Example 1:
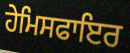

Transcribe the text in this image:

ਹੇਮਿਸਫਾਇਰ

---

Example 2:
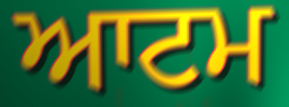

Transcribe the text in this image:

ਆਟਮ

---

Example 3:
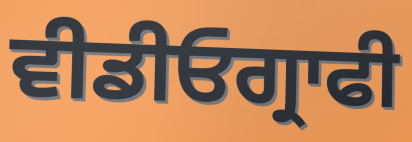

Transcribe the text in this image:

ਵੀਡੀਓਗ੍ਰਾਫੀ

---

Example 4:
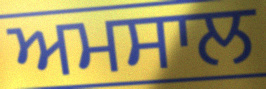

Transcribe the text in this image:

ਅਮਸਾਲ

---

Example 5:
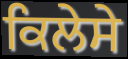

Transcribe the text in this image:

ਕਿਲੇਸੇ